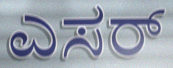
ಎಸರ್